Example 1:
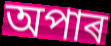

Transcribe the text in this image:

অপাৰ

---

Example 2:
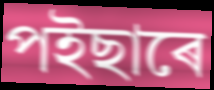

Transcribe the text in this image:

পইছাৰে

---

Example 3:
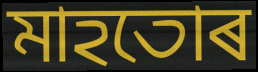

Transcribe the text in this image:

মাহতোৰ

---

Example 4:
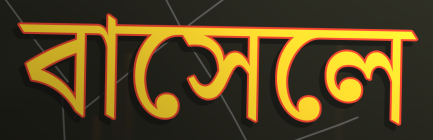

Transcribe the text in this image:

বাসেলে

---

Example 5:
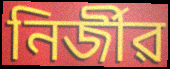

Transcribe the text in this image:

নিৰ্জীৱ